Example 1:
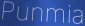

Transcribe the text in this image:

Punmia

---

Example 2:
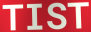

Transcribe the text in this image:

TIST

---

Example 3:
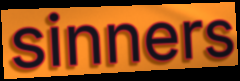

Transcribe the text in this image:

sinners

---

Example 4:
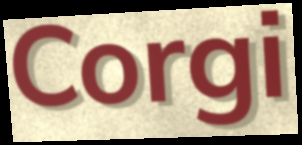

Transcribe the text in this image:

Corgi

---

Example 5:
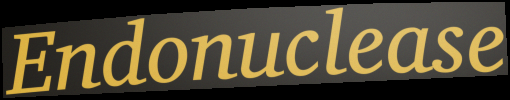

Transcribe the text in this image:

Endonuclease